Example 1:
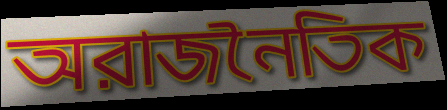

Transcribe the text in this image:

অরাজনৈতিক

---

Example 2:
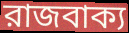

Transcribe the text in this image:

রাজবাক্য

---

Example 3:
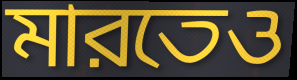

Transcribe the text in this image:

মারতেও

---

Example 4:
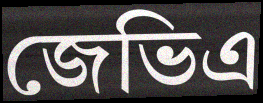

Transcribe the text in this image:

জেভিএ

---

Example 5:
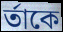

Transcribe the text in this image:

র্তাকে